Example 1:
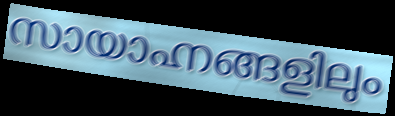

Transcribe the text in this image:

സായാഹ്നങ്ങളിലും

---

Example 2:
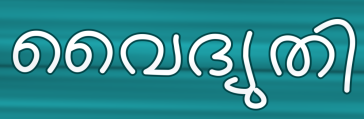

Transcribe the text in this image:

വൈദ്യുതി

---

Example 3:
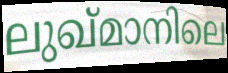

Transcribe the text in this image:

ലുഖ്മാനിലെ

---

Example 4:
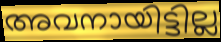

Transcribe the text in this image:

അവനായിട്ടില്ല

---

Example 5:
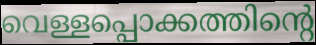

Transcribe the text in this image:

വെള്ളപ്പൊക്കത്തിന്റെ